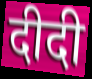
दीदी